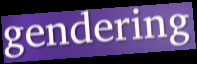
gendering